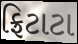
ફ્રિટાટા